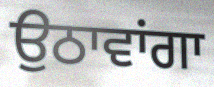
ਉਠਾਵਾਂਗਾ